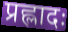
प्रह्लादः